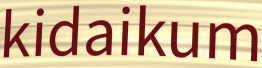
kidaikum